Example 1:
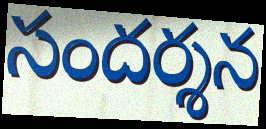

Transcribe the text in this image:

సందర్శన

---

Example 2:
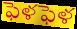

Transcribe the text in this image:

ఫెళఫెళ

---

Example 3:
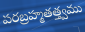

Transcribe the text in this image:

పరబ్రహ్మతత్త్వము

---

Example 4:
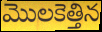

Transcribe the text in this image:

మొలకెత్తిన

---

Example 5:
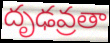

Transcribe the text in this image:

దృఢవ్రతా